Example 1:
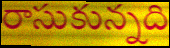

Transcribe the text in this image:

రాసుకున్నది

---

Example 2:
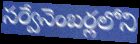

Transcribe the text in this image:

సర్వేనెంబర్లలోని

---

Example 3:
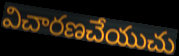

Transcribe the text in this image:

విచారణచేయుచు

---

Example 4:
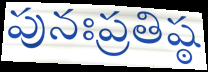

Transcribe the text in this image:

పునఃప్రతిష్ఠ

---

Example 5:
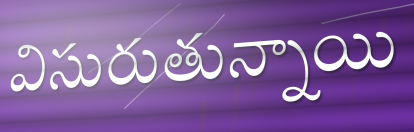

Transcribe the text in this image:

విసురుతున్నాయి